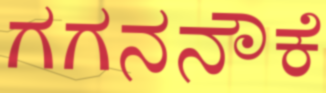
ಗಗನನೌಕೆ